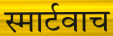
स्मार्टवाच